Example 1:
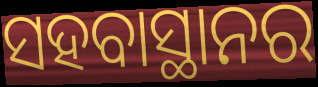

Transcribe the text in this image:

ସହବାସ୍ଥାନର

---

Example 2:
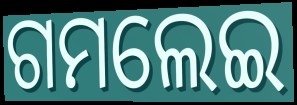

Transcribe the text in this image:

ଗମଲେଇ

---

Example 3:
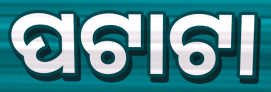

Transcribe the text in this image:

ପଟାଟା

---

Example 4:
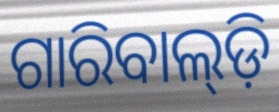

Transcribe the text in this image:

ଗାରିବାଲ୍‌ଡ଼ି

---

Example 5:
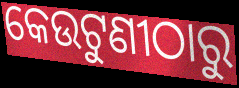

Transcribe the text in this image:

କେଉଟୁଣୀଠାରୁ